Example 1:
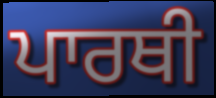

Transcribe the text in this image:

ਪਾਰਥੀ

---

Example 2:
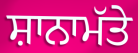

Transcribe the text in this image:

ਸ਼ਾਨਾਮੱਤੇ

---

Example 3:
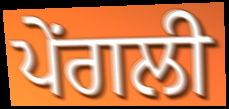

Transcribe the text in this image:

ਪੇਂਗਲੀ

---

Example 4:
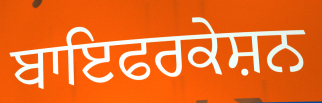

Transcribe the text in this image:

ਬਾਇਫਰਕੇਸ਼ਨ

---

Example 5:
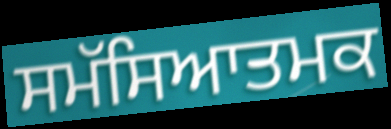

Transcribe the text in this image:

ਸਮੱਸਿਆਤਮਕ